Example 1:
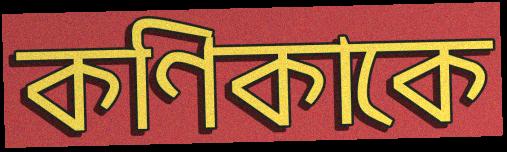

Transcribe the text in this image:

কণিকাকে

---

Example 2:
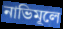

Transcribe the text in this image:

নাভিমূলে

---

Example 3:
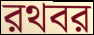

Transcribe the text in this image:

রথবর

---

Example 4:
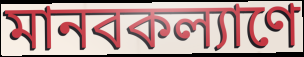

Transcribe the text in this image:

মানবকল্যাণে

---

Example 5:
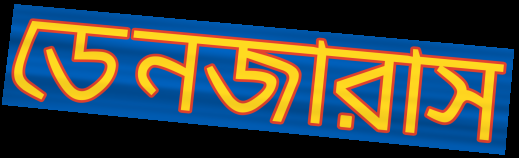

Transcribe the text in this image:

ডেনজারাস